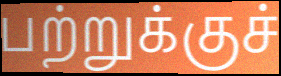
பற்றுக்குச்